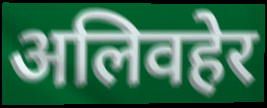
अलिवहेर